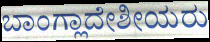
ಬಾಂಗ್ಲಾದೇಶೀಯರು